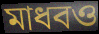
মাধবও